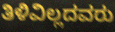
ತಿಳಿವಿಲ್ಲದವರು